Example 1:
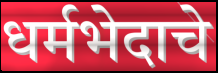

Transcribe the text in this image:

धर्मभेदाचे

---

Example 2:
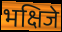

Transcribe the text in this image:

भक्षिजे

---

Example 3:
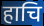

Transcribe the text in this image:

हाचि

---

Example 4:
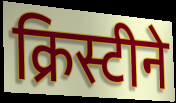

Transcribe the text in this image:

क्रिस्टीने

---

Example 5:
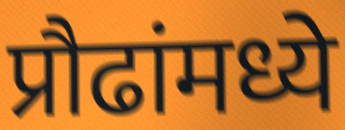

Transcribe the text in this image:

प्रौढांमध्ये